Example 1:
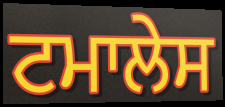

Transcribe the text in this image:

ਟਮਾਲੇਸ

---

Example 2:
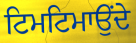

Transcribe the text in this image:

ਟਿਮਟਿਮਾਉਂਦੇ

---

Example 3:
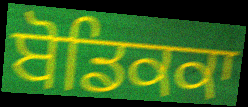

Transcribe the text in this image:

ਬੋਡਿਕਕਾ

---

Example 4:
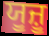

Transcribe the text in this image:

ਯੂਜ਼ੂ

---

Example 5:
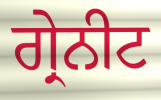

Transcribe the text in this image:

ਗ੍ਰੇਨੀਟ